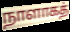
நாளாகத்